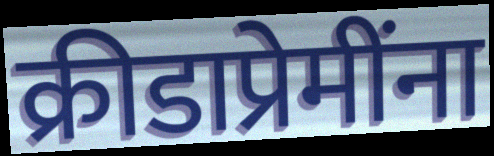
क्रीडाप्रेमींना